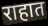
राहात